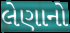
લેણાનો